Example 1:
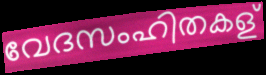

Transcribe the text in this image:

വേദസംഹിതകള്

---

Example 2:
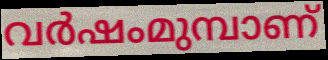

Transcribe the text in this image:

വർഷംമുമ്പാണ്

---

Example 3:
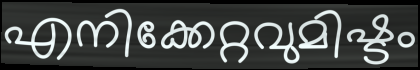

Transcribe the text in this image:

എനിക്കേറ്റവുമിഷ്ടം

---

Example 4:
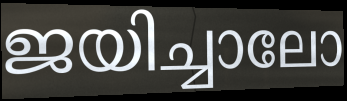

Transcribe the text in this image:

ജയിച്ചാലോ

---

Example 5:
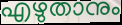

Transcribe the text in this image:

എഴുതാനും